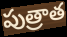
పుత్రాత